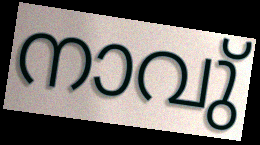
നാവു്